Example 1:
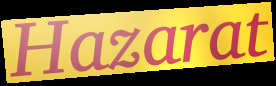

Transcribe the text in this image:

Hazarat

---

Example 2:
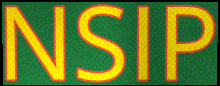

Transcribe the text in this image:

NSIP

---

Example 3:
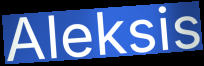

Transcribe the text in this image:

Aleksis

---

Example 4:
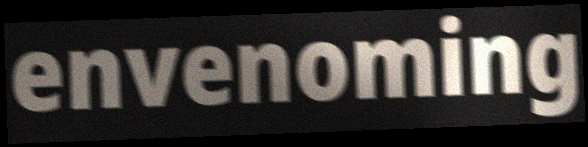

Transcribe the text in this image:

envenoming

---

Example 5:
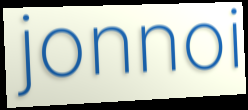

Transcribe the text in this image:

jonnoi